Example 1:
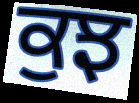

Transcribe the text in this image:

ਕੁਝ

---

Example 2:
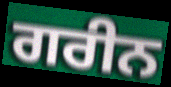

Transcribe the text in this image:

ਗਰੀਨ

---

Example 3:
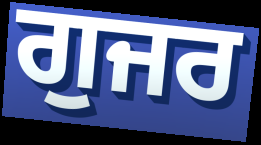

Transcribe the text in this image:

ਗੁਜਰ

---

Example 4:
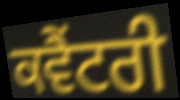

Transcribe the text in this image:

ਕਵੈਂਟਰੀ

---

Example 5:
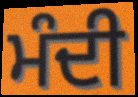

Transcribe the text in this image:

ਮੰਦੀ